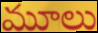
మూలు